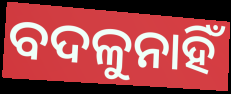
ବଦଳୁନାହିଁ